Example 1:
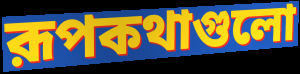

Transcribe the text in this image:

রূপকথাগুলো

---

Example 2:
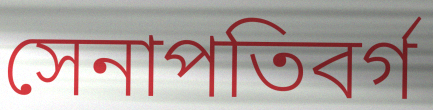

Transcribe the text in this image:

সেনাপতিবর্গ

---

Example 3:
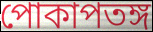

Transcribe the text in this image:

পোকাপতঙ্গ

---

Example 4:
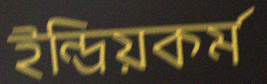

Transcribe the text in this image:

ইন্দ্রিয়কর্ম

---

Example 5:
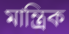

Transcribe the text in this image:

মান্ত্রিক